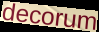
decorum